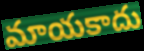
మాయకాదు